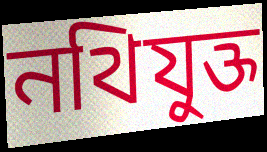
নথিযুক্ত